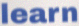
learn